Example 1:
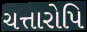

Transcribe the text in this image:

ચત્તારોપિ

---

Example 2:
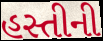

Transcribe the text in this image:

હસ્તીની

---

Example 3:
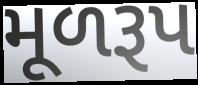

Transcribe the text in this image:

મૂળરૂપ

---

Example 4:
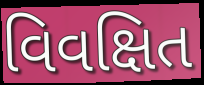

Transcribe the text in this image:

વિવક્ષિત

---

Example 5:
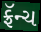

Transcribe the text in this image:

ફ્રૅન્ચ